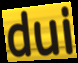
dui